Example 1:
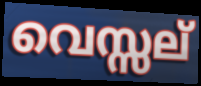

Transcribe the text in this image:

വെസ്സല്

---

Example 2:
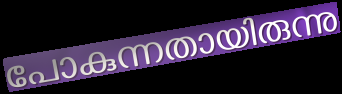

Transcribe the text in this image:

പോകുന്നതായിരുന്നു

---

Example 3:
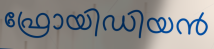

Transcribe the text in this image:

ഫ്രോയിഡിയൻ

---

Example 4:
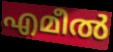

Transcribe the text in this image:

എമീൽ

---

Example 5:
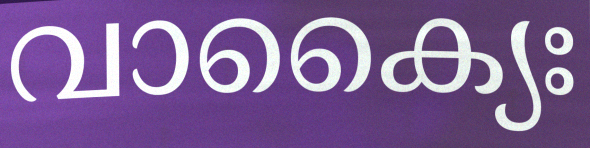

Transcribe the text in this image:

വാക്യൈഃ